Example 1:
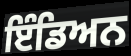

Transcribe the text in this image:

ਇੰਡਿਅਨ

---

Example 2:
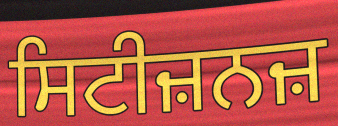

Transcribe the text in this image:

ਸਿਟੀਜ਼ਨਜ਼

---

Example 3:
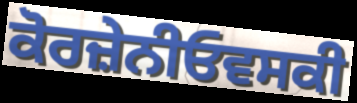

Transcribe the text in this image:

ਕੋਰਜ਼ੇਨੀਓਵਸਕੀ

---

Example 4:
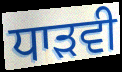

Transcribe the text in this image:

ਧਾੜਵੀ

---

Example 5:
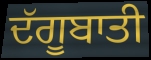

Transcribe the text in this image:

ਦੱਗੂਬਾਤੀ